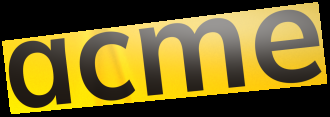
acme